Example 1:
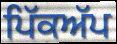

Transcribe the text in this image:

ਪਿੱਕਅੱਪ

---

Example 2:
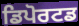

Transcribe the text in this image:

ਡਿਪੋਰਟਡ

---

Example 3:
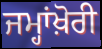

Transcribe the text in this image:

ਜਮ੍ਹਾਂਖ਼ੋਰੀ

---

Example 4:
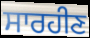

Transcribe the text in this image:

ਸਾਰਹੀਣ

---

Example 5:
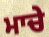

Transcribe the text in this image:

ਮਾਚੇ